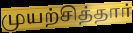
முயற்சித்தார்